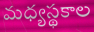
మధ్యస్థకాల